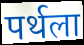
पर्थला